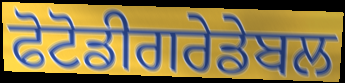
ਫੋਟੋਡੀਗਰੇਡੇਬਲ